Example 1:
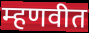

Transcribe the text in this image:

म्हणवीत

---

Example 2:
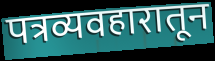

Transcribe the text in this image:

पत्रव्यवहारातून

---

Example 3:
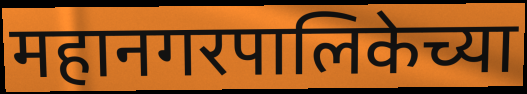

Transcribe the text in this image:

महानगरपालिकेच्या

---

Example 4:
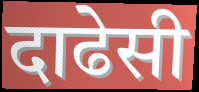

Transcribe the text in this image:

दाढेसी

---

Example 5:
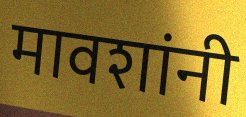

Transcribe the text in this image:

मावशांनी